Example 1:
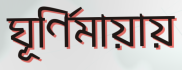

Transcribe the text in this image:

ঘূর্ণিমায়ায়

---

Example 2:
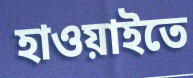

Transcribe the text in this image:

হাওয়াইতে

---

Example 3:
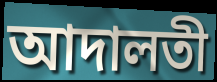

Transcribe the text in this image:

আদালতী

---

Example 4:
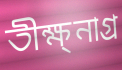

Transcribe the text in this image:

তীক্ষ্নাগ্র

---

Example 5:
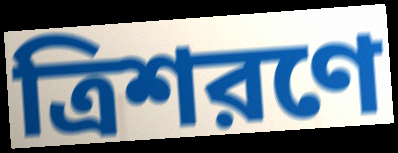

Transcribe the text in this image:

ত্রিশরণে